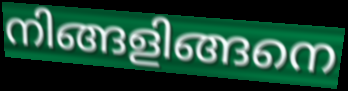
നിങ്ങളിങ്ങനെ